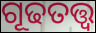
ଗୂଢତତ୍ତ୍ୱ